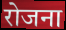
रोजना